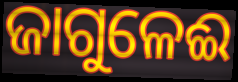
ଜାଗୁଳେଈ